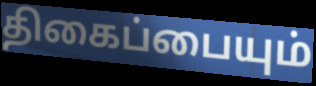
திகைப்பையும்